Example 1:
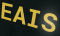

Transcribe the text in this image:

EAIS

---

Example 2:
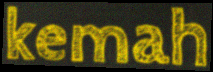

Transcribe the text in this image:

kemah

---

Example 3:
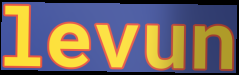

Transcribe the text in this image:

levun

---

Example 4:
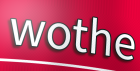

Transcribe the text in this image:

wothe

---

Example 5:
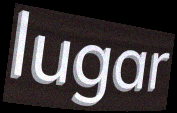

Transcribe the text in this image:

lugar